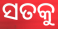
ସତକୁ